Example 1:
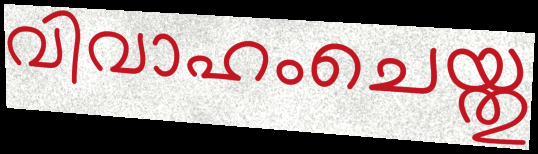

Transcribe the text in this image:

വിവാഹംചെയ്തു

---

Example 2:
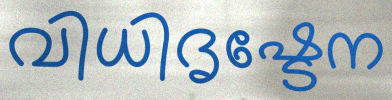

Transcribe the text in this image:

വിധിദൃഷ്ടേന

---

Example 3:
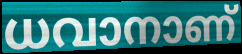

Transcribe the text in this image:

ധവാനാണ്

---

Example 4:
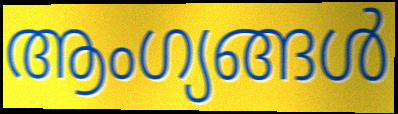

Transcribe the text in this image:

ആംഗ്യങ്ങൾ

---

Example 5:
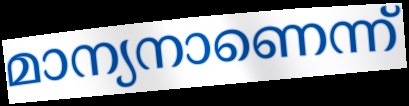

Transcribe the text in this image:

മാന്യനാണെന്ന്